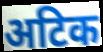
अटिक